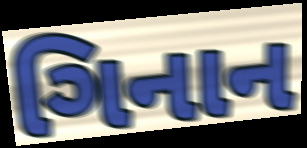
ગિનાન